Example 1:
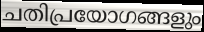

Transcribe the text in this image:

ചതിപ്രയോഗങ്ങളും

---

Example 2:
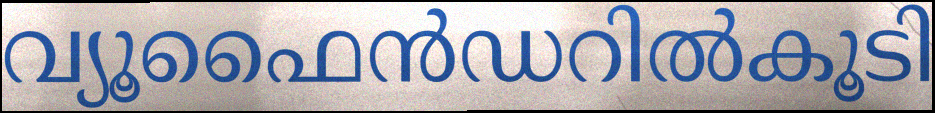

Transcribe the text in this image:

വ്യൂഫൈൻഡറിൽകൂടി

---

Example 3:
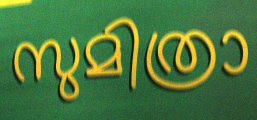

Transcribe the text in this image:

സുമിത്രാ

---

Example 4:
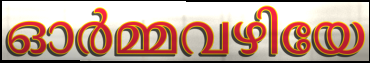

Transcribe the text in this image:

ഓർമ്മവഴിയേ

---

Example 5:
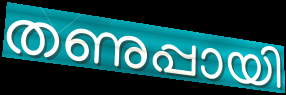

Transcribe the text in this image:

തണുപ്പായി